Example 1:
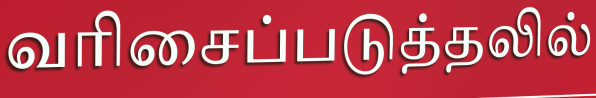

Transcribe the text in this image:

வரிசைப்படுத்தலில்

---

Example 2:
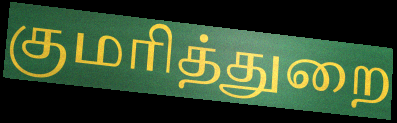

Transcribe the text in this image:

குமரித்துறை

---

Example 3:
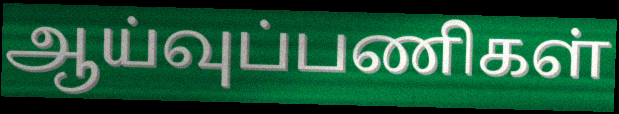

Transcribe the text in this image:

ஆய்வுப்பணிகள்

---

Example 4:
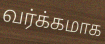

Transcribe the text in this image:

வர்க்கமாக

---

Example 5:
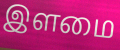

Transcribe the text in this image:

இளமை